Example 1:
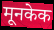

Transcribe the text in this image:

मूनकेक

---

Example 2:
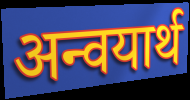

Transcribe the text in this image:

अन्वयार्थ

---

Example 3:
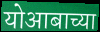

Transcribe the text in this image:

योआबाच्या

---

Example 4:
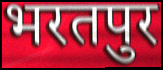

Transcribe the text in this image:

भरतपुर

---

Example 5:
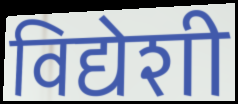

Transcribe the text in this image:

विद्येशी